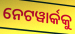
ନେଟୱାର୍କକୁ